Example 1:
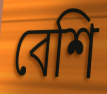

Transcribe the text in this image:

বেশি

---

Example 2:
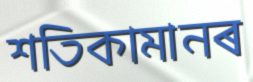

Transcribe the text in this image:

শতিকামানৰ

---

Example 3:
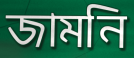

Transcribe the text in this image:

জামনি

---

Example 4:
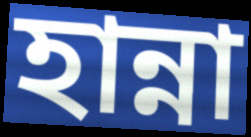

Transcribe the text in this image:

হান্না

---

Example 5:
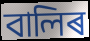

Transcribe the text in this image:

বালিৰ